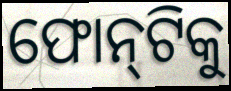
ଫୋନ୍‌ଟିକୁ